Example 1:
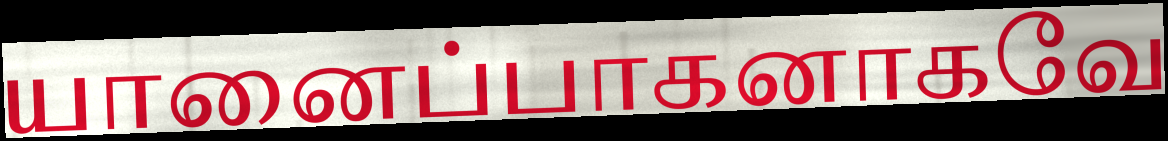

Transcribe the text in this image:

யானைப்பாகனாகவே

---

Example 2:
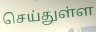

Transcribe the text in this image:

செய்துள்ள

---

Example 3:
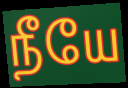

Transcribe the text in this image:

நீயே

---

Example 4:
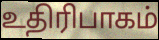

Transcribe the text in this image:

உதிரிபாகம்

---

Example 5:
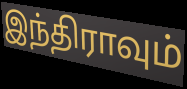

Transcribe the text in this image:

இந்திராவும்